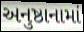
અનુષ્ઠાનામાં